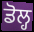
ਡੋਲ੍ਹ